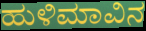
ಹುಳಿಮಾವಿನ